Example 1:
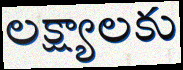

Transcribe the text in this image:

లక్ష్యాలకు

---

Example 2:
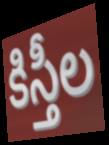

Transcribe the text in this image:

కిస్తీల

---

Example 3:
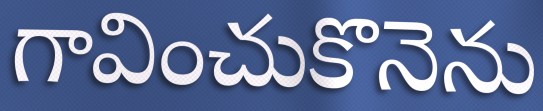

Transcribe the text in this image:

గావించుకొనెను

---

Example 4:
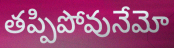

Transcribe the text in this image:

తప్పిపోవునేమో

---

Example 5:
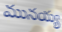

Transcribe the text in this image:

మునయ్య